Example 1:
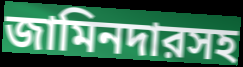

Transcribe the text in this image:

জামিনদারসহ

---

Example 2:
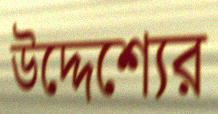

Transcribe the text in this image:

উদ্দেশ্যের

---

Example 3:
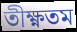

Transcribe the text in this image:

তীক্ষ্ণতম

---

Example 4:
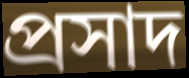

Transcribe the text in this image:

প্রসাদ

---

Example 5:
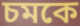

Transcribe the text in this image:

চমকে